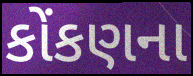
કોંકણના